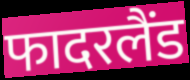
फादरलैंड